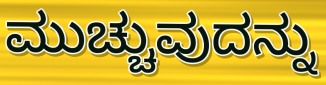
ಮುಚ್ಚುವುದನ್ನು